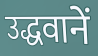
उद्धवानें